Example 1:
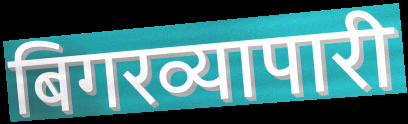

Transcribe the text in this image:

बिगरव्यापारी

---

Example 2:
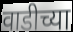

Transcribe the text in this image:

वाडीच्या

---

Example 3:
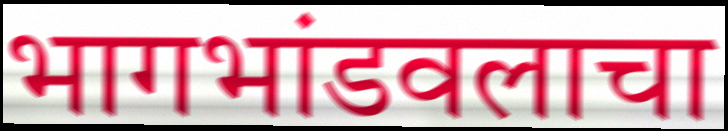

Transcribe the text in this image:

भागभांडवलाचा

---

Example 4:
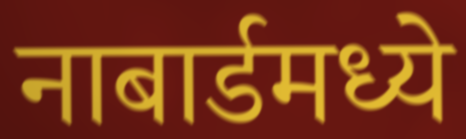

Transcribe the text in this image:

नाबार्डमध्ये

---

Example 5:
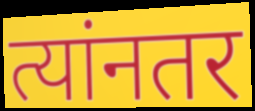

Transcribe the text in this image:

त्यांनतर